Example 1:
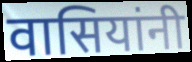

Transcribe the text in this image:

वासियांनी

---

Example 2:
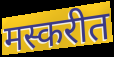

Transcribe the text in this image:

मस्करीत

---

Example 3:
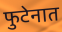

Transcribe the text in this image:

फुटेनात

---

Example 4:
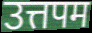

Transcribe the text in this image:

उत्तपम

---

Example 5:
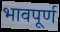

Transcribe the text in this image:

भावपूर्ण